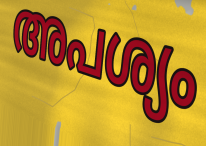
അപശ്യം